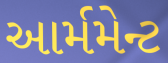
આર્મમેન્ટ